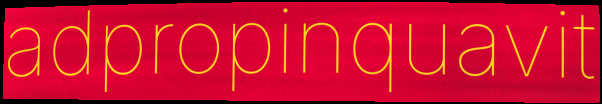
adpropinquavit